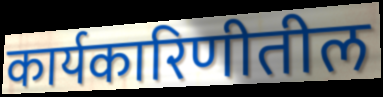
कार्यकारिणीतील